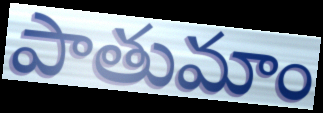
పాతుమాం